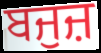
ਬਜੁਜ਼